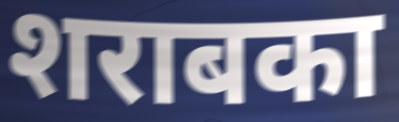
शराबका